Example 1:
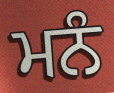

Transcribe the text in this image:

ਮਨੰ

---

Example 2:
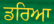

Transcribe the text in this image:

ਡਰਿਆ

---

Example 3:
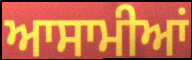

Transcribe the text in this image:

ਆਸਾਮੀਆਂ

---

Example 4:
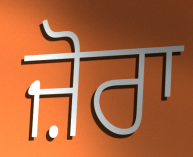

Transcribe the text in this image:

ਜ਼ੋਰਾ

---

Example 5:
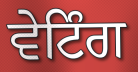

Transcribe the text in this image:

ਵੇਟਿੰਗ